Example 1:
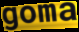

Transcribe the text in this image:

goma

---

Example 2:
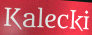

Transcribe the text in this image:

Kalecki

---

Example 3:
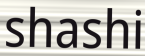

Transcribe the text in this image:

shashi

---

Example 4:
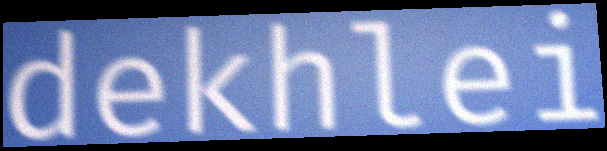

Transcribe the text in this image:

dekhlei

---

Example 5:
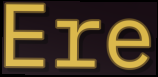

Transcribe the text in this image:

Ere